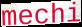
mechi